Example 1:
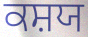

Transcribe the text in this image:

ਕਸ਼ਯ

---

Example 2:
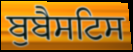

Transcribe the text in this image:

ਬੁਬੈਸਟਿਸ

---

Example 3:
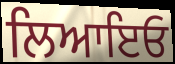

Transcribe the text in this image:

ਲਿਆਇਓ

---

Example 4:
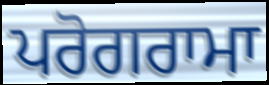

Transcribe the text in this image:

ਪਰੋਗਰਾਮਾ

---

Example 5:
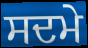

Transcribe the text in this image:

ਸਦਮੇ